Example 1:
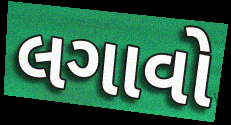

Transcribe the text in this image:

લગાવો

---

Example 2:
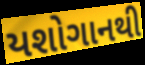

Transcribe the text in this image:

યશોગાનથી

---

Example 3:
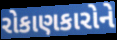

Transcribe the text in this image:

રોકાણકારોને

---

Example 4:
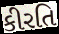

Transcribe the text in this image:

કીરતિ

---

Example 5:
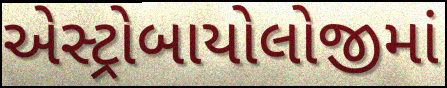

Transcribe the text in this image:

એસ્ટ્રોબાયોલોજીમાં